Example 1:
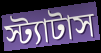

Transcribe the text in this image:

স্ট্যাটাস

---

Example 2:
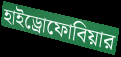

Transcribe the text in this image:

হাইড্রোফোবিয়ার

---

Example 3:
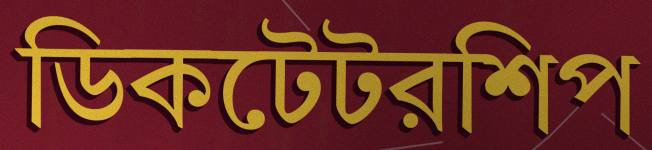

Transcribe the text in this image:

ডিকটেটরশিপ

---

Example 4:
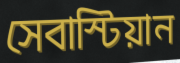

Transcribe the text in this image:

সেবাস্টিয়ান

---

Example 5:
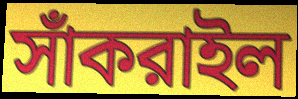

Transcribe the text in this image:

সাঁকরাইল